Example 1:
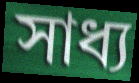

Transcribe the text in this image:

সাধ্য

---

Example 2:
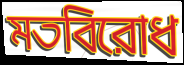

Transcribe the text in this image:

মতবিরোধ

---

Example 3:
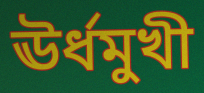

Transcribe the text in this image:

ঊর্ধমুখী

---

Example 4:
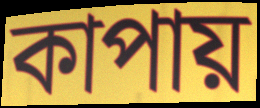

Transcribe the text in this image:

কাপায়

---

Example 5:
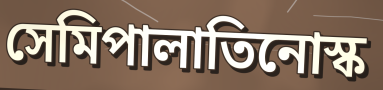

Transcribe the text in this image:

সেমিপালাতিনোস্ক